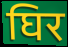
घिर